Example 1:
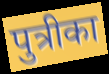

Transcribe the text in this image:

पुत्रीका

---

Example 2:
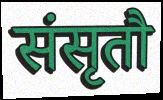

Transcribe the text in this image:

संसृतौ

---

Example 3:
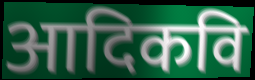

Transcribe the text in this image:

आदिकवि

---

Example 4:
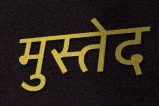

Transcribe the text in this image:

मुस्तेद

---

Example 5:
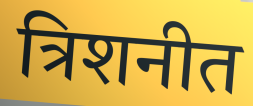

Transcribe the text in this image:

त्रिशनीत